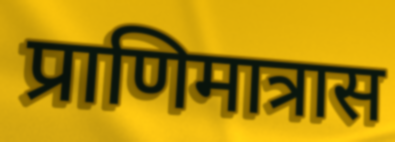
प्राणिमात्रास